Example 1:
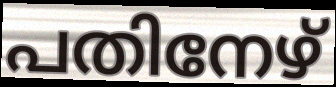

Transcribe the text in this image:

പതിനേഴ്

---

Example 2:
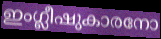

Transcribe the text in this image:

ഇംഗ്ലീഷുകാരനോ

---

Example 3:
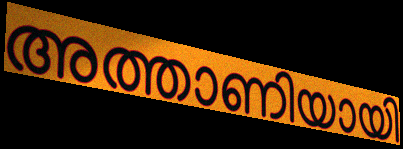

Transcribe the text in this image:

അത്താണിയായി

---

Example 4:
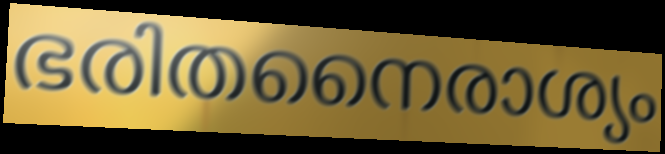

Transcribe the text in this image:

ഭരിതനൈരാശ്യം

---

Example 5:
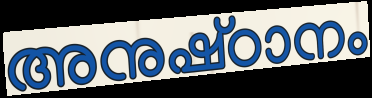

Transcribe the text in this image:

അനുഷ്‌ഠാനം